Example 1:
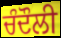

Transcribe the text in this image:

ਚੰਦੌਲੀ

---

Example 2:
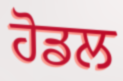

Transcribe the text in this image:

ਹੋਡਲ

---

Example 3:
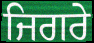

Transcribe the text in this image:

ਜਿਗਰੇ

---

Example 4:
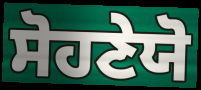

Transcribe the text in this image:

ਸੋਹਣੇਯੋ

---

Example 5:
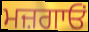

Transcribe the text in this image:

ਮਜ਼ਗਾਓਂ